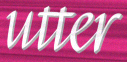
utter